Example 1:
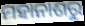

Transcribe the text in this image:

ମହାନାଶରୁ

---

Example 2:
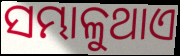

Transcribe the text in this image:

ସମ୍ଭାଳୁଥାଏ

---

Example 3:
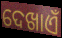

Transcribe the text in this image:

ଦେଖାଏଁ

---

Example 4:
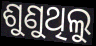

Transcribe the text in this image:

ଶୁଣୁଥିଲୁ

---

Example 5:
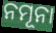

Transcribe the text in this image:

ନମୂନା